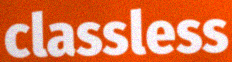
classless